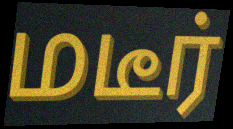
மடீர்